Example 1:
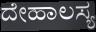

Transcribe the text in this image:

ದೇಹಾಲಸ್ಯ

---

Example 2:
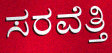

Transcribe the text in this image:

ಸರವೆತ್ತಿ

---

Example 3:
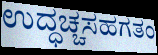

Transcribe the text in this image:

ಉದ್ಧಚ್ಚಸಹಗತಂ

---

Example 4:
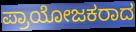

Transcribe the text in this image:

ಪ್ರಾಯೋಜಕರಾದ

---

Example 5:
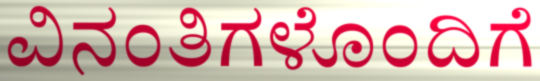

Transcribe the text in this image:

ವಿನಂತಿಗಳೊಂದಿಗೆ